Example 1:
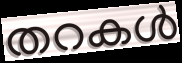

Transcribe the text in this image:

തറകൾ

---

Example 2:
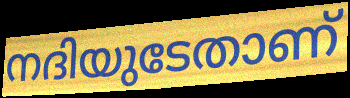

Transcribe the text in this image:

നദിയുടേതാണ്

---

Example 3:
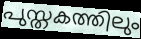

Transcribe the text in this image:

പുസ്തകത്തിലും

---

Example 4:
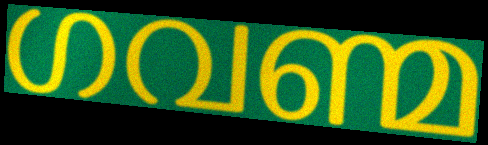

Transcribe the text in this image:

ഗവണ്മ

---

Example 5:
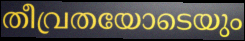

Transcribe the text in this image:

തീവ്രതയോടെയും